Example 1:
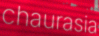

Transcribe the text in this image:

chaurasia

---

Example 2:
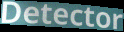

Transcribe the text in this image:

Detector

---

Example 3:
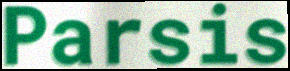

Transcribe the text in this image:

Parsis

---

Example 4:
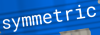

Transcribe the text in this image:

symmetric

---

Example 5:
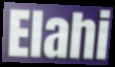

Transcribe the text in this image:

Elahi